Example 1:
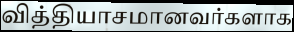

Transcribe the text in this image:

வித்தியாசமானவர்களாக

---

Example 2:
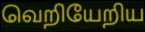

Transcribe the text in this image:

வெறியேறிய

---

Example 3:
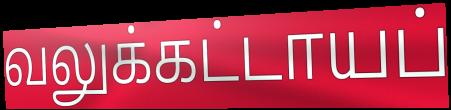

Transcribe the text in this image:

வலுக்கட்டாயப்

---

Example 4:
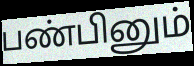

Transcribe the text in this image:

பண்பினும்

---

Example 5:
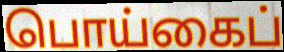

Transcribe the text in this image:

பொய்கைப்